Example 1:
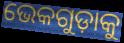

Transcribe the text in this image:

ଭେକଗୁଡ଼ାକୁ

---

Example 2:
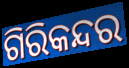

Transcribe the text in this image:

ଗିରିକନ୍ଦର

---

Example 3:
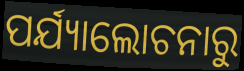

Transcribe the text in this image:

ପର୍ଯ୍ୟାଲୋଚନାରୁ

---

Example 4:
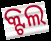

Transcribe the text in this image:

କ୍ଟଲ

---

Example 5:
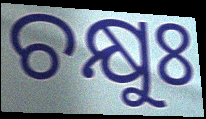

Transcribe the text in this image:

ଚକ୍ଷୁଃ